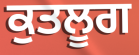
ਕੁਤਲੂਗ